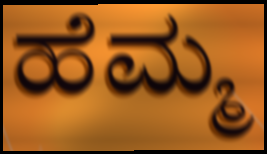
ಹೆಮ್ಮ